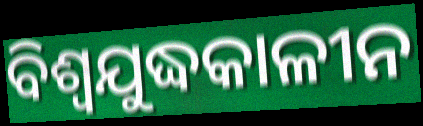
ବିଶ୍ୱଯୁଦ୍ଧକାଳୀନ